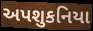
અપશુકનિયા